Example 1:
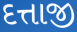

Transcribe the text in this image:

દત્તાજી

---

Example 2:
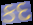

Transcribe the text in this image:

કદ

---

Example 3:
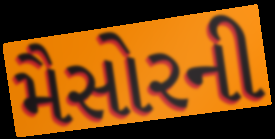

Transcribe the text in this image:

મૈસોરની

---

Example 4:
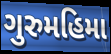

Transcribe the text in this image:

ગુરુમહિમા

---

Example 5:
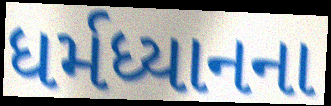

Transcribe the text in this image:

ધર્મધ્યાનના